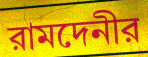
রামদেনীর